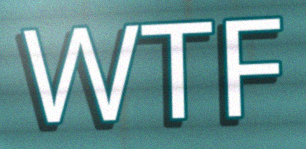
WTF